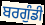
ਬਰਗੁੰਡੀ